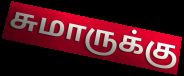
சுமாருக்கு